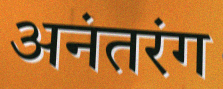
अनंतरंग